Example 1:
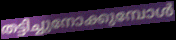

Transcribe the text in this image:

തട്ടിച്ചുനോക്കുമ്പോൾ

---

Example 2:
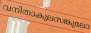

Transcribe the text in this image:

വനിതാകുലസങ്കുലോ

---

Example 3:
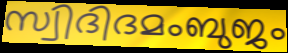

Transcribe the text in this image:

സ്വിദിദമംബുജം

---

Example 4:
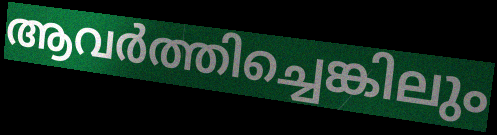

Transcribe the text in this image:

ആവർത്തിച്ചെങ്കിലും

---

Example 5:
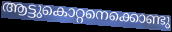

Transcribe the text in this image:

ആട്ടുകൊറ്റനെക്കൊണ്ടു